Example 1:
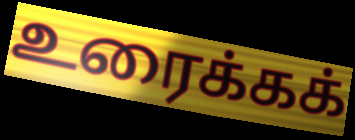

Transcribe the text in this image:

உரைக்கக்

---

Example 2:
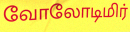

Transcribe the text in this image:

வோலோடிமிர்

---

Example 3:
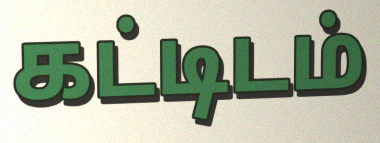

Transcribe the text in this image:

கட்டிடம்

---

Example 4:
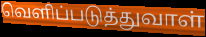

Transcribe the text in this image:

வெளிப்படுத்துவாள்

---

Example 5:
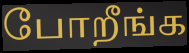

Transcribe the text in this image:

போறீங்க